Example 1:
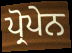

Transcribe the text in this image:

ਪ੍ਰੋਪੇਨ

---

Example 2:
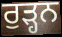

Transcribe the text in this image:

ਰੁੜ੍ਹਨ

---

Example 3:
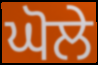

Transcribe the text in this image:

ਘੋਲੇ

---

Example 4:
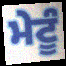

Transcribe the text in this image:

ਮੇਟੂੰ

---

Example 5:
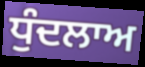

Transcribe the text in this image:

ਧੁੰਦਲਾਅ